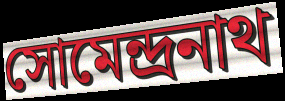
সোমেন্দ্রনাথ